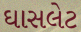
ઘાસલેટ